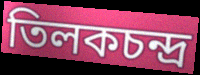
তিলকচন্দ্র